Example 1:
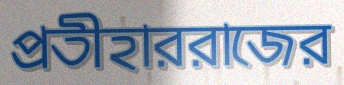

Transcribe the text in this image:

প্রতীহাররাজের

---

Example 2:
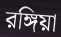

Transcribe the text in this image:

রঙ্গিয়া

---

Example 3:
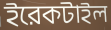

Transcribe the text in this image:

ইরেকটাইল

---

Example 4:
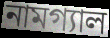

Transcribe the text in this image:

নামগ্যাল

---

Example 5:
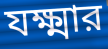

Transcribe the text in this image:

যক্ষ্মার